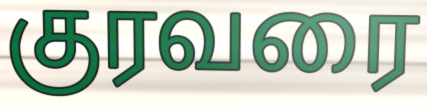
குரவரை